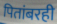
पितांबरही